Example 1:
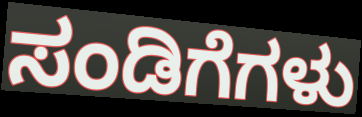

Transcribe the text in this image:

ಸಂಡಿಗೆಗಳು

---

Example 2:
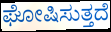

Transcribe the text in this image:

ಘೋಷಿಸುತ್ತದೆ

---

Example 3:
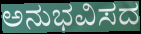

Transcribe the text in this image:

ಅನುಭವಿಸದ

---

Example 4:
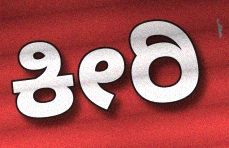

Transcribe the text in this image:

ಕೀರಿ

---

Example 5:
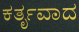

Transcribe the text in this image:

ಕರ್ತೃವಾದ